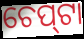
ଚେପ୍‌ଟା